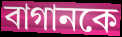
বাগানকে